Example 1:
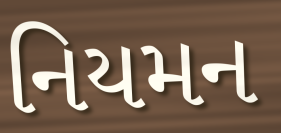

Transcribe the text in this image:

નિયમન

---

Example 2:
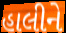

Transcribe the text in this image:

હાલીને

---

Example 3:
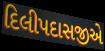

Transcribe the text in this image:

દિલીપદાસજીએ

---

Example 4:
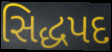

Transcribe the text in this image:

સિદ્ધપદ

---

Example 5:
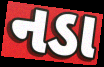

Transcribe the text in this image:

નડા